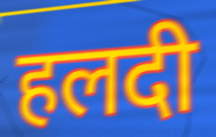
हलदी